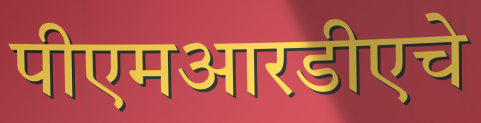
पीएमआरडीएचे